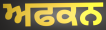
ਅਫਕਨ